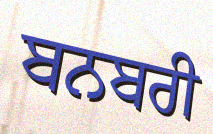
ਬਨਬਰੀ